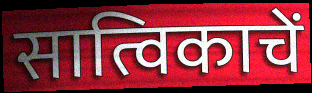
सात्विकाचें